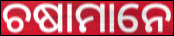
ଚଷାମାନେ